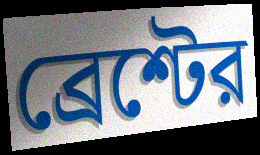
ব্রেশ্টের